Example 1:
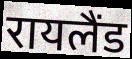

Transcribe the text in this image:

रायलैंड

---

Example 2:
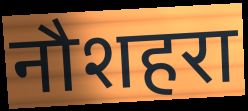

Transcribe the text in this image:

नौशहरा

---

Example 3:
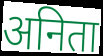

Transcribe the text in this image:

अनिता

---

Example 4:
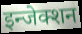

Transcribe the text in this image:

इन्जेक्शन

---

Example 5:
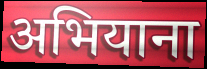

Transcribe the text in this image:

अभियाना